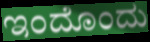
ಇಂದೊಂದು